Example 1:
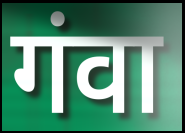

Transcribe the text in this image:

गंवा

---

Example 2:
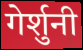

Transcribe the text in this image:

गेर्शुनी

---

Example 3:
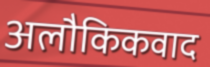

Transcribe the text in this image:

अलौकिकवाद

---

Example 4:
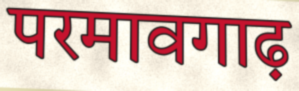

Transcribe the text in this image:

परमावगाढ़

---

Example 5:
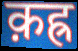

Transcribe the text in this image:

क़ह्र